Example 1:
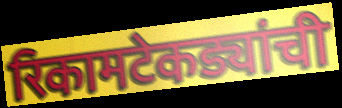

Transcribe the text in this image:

रिकामटेकड्यांची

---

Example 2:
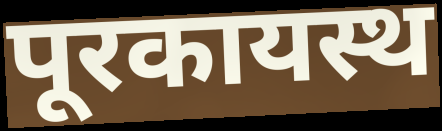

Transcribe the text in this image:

पूरकायस्थ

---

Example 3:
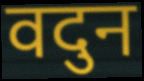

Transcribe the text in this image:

वदुन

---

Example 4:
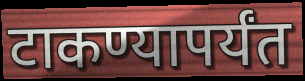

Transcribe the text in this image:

टाकण्यापर्यंत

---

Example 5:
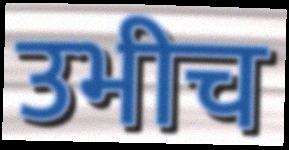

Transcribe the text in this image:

उभीच